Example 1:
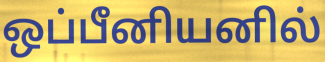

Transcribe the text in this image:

ஒப்பீனியனில்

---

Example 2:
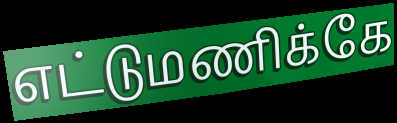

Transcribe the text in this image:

எட்டுமணிக்கே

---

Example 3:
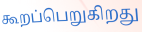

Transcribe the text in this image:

கூறப்பெறுகிறது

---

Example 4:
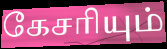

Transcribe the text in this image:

கேசரியும்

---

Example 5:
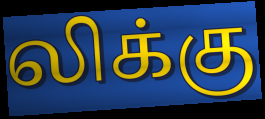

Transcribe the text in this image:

லிக்கு